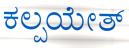
ಕಲ್ಪಯೇತ್